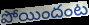
పోయిందంట